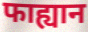
फाह्यान